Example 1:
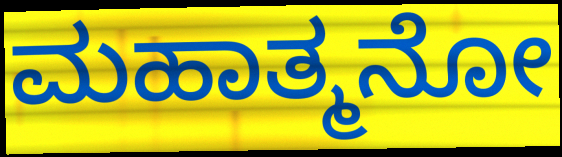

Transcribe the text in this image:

ಮಹಾತ್ಮನೋ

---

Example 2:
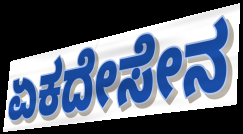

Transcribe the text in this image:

ಏಕದೇಸೇನ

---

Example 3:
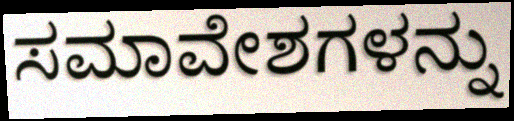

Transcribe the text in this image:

ಸಮಾವೇಶಗಳನ್ನು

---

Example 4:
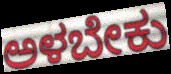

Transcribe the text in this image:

ಅಳಬೇಕು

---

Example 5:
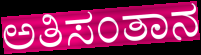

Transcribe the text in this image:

ಅತಿಸಂತಾನ